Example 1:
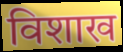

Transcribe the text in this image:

विशाख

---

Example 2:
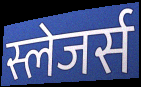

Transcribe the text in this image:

स्लेजर्स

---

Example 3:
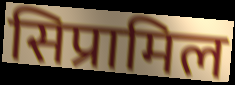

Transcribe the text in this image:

सिप्रामिल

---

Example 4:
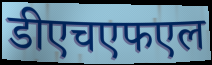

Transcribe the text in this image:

डीएचएफएल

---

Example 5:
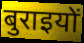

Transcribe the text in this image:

बुराइयों